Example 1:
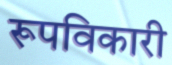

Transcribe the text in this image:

रूपविकारी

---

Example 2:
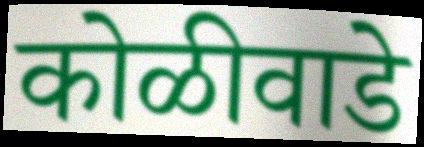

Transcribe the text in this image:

कोळीवाडे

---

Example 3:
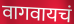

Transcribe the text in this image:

वागवायचं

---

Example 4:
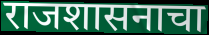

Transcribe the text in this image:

राजशासनाचा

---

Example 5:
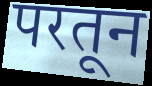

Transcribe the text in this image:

परतून